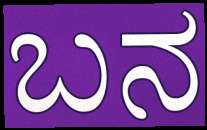
ಬನ